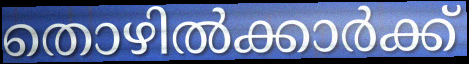
തൊഴിൽക്കാർക്ക്